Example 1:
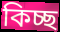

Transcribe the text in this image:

কিচ্ছ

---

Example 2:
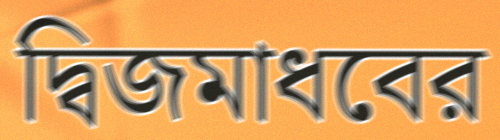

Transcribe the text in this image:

দ্বিজমাধবের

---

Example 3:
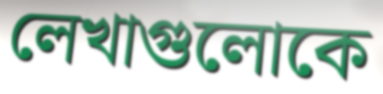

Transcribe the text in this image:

লেখাগুলোকে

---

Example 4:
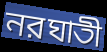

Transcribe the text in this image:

নরঘাতী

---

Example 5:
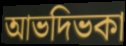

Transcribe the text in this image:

আভদিভকা